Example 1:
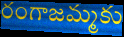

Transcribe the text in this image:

రంగాజమ్మకు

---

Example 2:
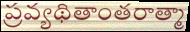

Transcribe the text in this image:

ప్రవ్యథితాంతరాత్మా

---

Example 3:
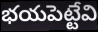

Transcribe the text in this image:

భయపెట్టేవి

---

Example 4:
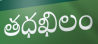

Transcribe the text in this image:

తధఖిలం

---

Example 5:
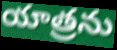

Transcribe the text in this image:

యాత్రను